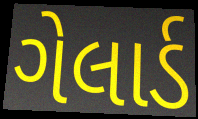
ગેલાર્ડ